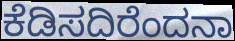
ಕೆಡಿಸದಿರೆಂದನಾ